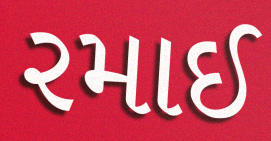
રમાઈ